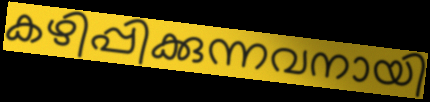
കഴിപ്പിക്കുന്നവനായി